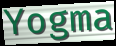
Yogma